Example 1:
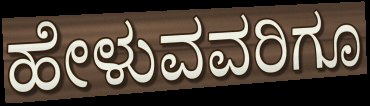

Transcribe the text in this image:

ಹೇಳುವವರಿಗೂ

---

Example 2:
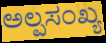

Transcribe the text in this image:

ಅಲ್ಪಸಂಖ್ಯ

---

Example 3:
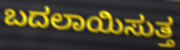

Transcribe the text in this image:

ಬದಲಾಯಿಸುತ್ತ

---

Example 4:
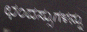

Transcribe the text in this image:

ಛಂದಸ್ಸುಗಳನ್ನು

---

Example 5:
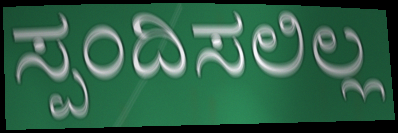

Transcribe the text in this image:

ಸ್ಪಂದಿಸಲಿಲ್ಲ